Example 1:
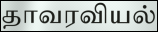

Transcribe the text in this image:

தாவரவியல்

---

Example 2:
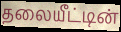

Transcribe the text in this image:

தலையீட்டின்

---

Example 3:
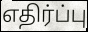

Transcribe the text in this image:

எதிர்ப்பு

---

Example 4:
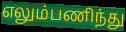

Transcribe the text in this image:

எலும்பணிந்து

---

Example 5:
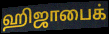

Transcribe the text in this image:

ஹிஜாபைக்